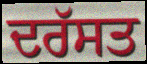
ਦਰੱਸਤ